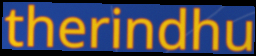
therindhu